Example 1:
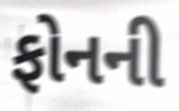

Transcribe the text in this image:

ફોનની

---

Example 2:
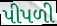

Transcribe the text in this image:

પીપળી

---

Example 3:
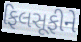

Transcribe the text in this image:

ફિલસૂફીને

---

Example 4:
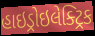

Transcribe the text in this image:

હાઇડ્રોઇલેક્ટ્રિક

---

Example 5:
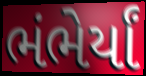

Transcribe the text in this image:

ભંભેર્યાં